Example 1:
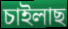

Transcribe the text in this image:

চাইলাছ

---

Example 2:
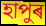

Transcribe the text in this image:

হাপুৰ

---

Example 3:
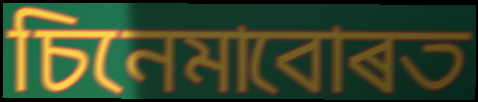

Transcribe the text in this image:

চিনেমাবোৰত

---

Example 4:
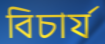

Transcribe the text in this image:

বিচাৰ্য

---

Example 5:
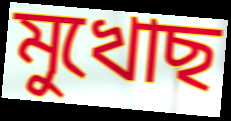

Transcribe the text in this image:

মুখোছ